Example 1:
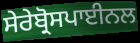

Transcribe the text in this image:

ਸੇਰੇਬ੍ਰੋਸਪਾਈਨਲ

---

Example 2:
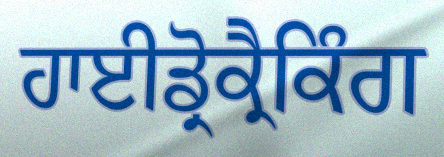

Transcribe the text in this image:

ਹਾਈਡ੍ਰੋਕ੍ਰੈਕਿੰਗ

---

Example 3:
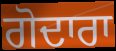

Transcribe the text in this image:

ਗੋਦਾਰਾ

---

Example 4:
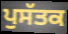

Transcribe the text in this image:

ਪੁਸੱਤਕ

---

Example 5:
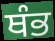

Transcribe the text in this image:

ਥੰਭ